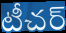
టీచర్